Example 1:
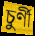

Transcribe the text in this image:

চুর্ণী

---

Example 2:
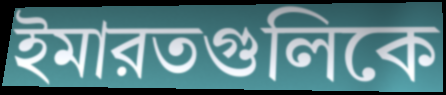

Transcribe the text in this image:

ইমারতগুলিকে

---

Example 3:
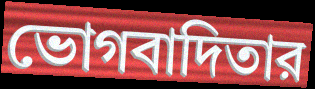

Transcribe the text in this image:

ভোগবাদিতার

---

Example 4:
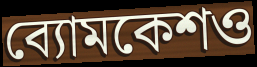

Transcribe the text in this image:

ব্যোমকেশও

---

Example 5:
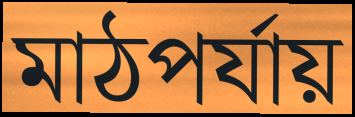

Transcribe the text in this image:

মাঠপর্যায়